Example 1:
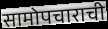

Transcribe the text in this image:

सामोपचाराची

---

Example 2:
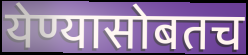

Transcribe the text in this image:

येण्यासोबतच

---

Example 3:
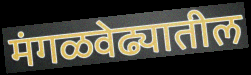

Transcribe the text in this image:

मंगळवेढ्यातील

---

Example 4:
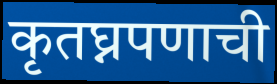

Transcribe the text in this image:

कृतघ्नपणाची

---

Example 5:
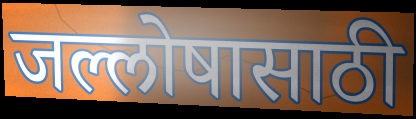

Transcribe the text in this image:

जल्लोषासाठी